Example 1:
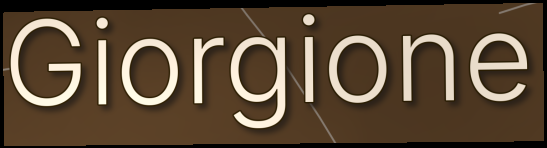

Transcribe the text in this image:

Giorgione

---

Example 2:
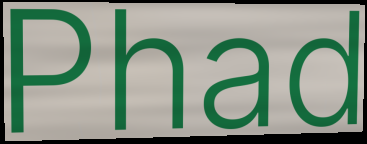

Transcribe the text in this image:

Phad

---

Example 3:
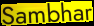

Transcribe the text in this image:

Sambhar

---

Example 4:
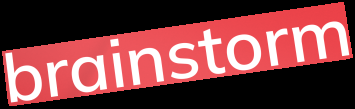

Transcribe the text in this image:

brainstorm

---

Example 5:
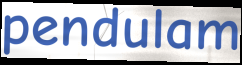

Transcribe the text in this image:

pendulam